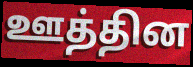
ஊத்தின